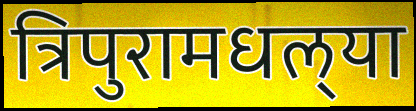
त्रिपुरामधल्या